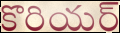
కొరియర్